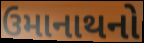
ઉમાનાથનો